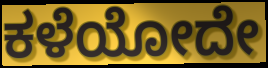
ಕಳೆಯೋದೇ